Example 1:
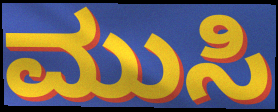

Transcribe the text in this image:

ಮುಸಿ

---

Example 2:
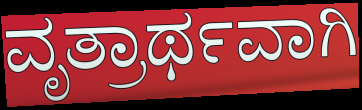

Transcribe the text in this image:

ವೃತ್ರಾರ್ಥವಾಗಿ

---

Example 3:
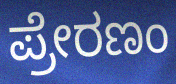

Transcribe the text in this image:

ಪ್ರೇರಣಂ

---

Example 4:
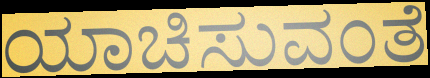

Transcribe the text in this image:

ಯಾಚಿಸುವಂತೆ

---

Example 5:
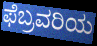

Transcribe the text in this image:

ಫೆಬ್ರವರಿಯ